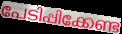
പേടിപ്പിക്കേണ്ട